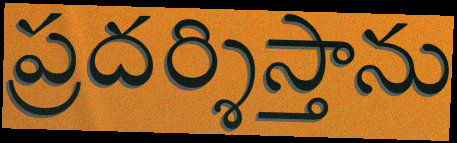
ప్రదర్శిస్తాను